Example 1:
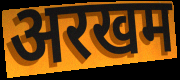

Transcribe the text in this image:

अरखम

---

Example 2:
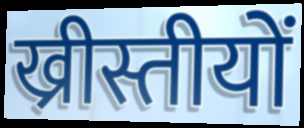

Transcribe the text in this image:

ख्रीस्तीयों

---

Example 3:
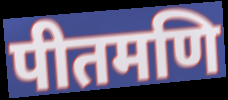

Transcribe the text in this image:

पीतमणि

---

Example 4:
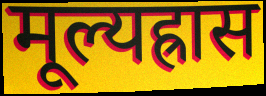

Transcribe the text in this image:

मूल्यह्रास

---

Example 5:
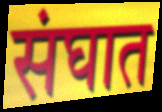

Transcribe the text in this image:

संघात